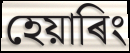
হেয়াৰিং